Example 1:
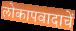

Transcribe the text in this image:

लोकापवादाचें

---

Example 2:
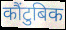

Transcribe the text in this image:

कौंटुबिक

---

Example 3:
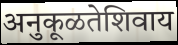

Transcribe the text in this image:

अनुकूळतेशिवाय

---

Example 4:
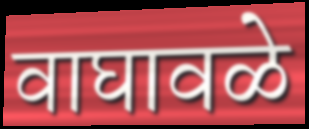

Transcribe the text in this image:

वाघावळे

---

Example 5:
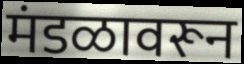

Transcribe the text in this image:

मंडळावरून